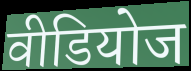
वीडियोज